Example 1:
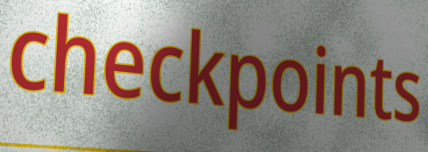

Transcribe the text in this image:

checkpoints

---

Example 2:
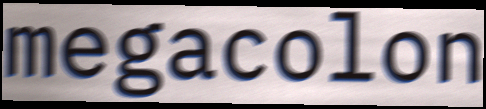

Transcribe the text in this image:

megacolon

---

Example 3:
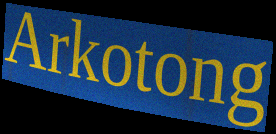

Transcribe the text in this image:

Arkotong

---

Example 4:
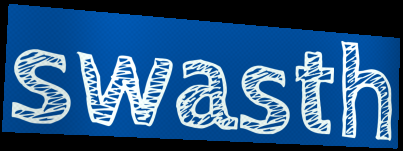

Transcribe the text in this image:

swasth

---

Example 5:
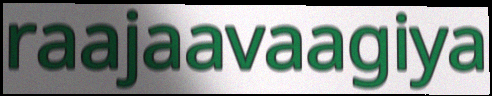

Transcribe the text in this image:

raajaavaagiya